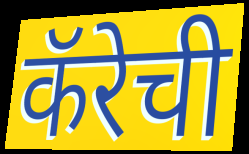
कॅरेची